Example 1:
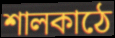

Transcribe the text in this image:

শালকাঠে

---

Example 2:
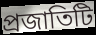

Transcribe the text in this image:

প্রজাতিটি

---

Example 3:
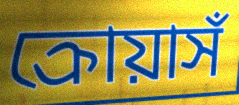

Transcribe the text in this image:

ক্রোয়াসঁ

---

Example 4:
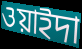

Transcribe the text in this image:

ওয়াইদা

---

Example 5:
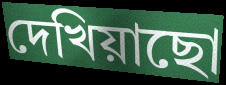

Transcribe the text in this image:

দেখিয়াছো